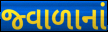
જ્વાળાનાં